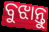
ବୁଝାନ୍ତୁ